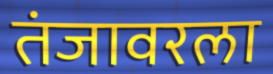
तंजावरला